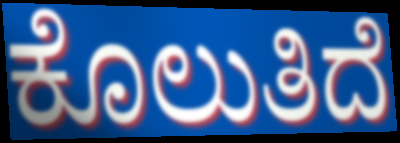
ಕೊಲುತಿದೆ